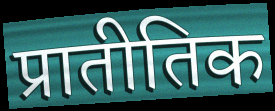
प्रातीतिक